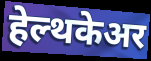
हेल्थकेअर